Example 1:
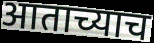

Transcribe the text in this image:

आताच्याच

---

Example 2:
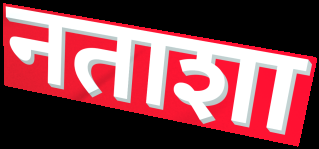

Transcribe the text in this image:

नताशा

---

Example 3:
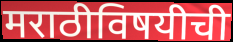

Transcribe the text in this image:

मराठीविषयीची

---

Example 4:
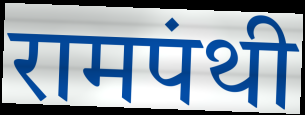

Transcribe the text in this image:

रामपंथी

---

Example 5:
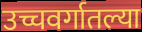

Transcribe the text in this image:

उच्चवर्गातल्या